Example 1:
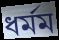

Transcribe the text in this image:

ধর্মম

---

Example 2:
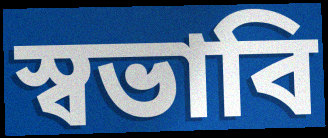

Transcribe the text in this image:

স্বভাবি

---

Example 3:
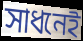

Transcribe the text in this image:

সাধনেই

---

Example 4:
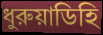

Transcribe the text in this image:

ধুরুয়াডিহি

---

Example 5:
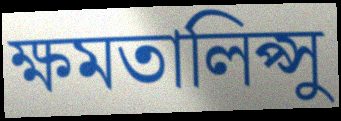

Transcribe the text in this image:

ক্ষমতালিপ্সু